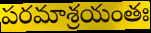
పరమాశ్రయంతః